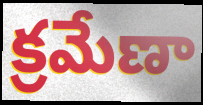
క్రమేణా